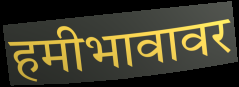
हमीभावावर